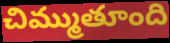
చిమ్ముతూంది